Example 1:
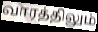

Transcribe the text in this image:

வாரத்திலும்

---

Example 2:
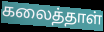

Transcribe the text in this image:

கலைத்தாள்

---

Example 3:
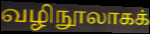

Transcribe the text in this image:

வழிநூலாகக்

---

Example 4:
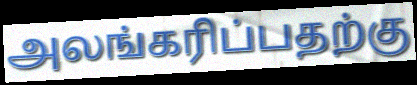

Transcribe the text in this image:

அலங்கரிப்பதற்கு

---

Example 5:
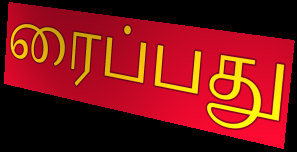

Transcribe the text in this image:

ரைப்பது